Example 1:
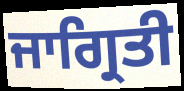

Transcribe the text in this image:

ਜਾਗ੍ਰਿਤੀ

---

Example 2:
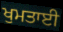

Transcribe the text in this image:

ਖੁਮਤਾਈ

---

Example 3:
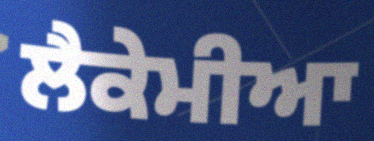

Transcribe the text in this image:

ਲੈਕੇਮੀਆ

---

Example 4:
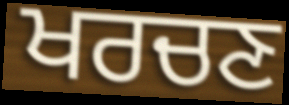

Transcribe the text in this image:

ਖਰਚਣ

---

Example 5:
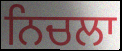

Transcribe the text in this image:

ਨਿਚਲਾ